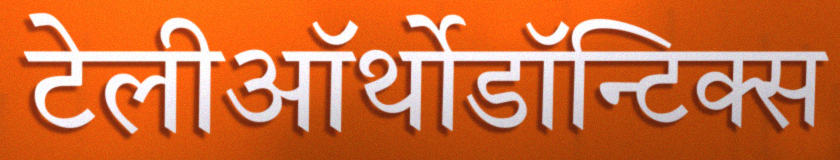
टेलीऑर्थोडॉन्टिक्स